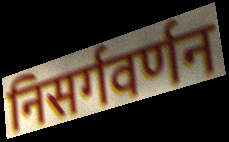
निसर्गवर्णन